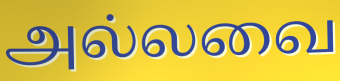
அல்லவை